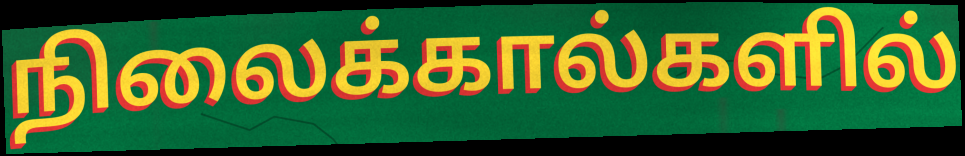
நிலைக்கால்களில்